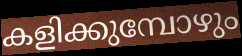
കളിക്കുമ്പോഴും